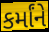
કર્માંને